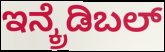
ಇನ್ಕ್ರೆಡಿಬಲ್